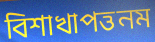
বিশাখাপত্তনম